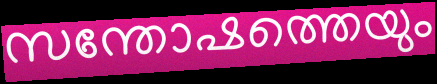
സന്തോഷത്തെയും